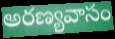
అరణ్యవాసం